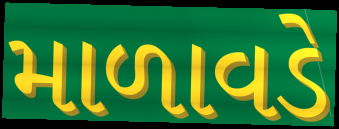
માળાવડે